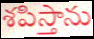
శపిస్తాను